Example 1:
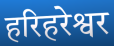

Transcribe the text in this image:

हरिहरेश्वर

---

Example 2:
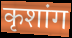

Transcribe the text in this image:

कृशांग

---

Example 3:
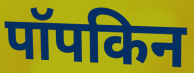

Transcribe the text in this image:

पॉपकिन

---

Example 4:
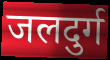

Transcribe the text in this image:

जलदुर्ग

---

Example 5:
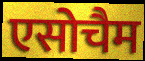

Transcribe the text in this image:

एसोचैम